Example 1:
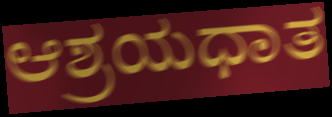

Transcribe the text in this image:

ಆಶ್ರಯಧಾತ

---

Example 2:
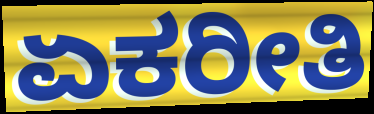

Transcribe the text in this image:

ಏಕರೀತಿ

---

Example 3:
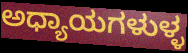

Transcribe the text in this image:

ಅಧ್ಯಾಯಗಳುಳ್ಳ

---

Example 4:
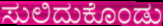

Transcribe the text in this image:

ಸುಲಿದುಕೊಂಡು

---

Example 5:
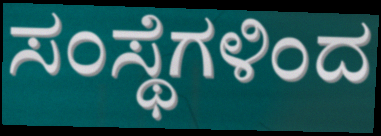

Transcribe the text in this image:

ಸಂಸ್ಥೆಗಳಿಂದ